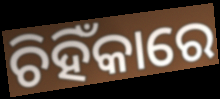
ଚିହିଁକାରେ